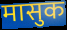
मासुक